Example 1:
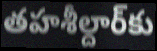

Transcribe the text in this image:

తహశీల్దార్‌కు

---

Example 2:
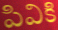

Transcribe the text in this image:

పివికి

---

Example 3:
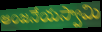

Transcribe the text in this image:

ఆంజనేయస్వామి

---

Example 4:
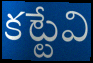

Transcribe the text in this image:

కట్టేవి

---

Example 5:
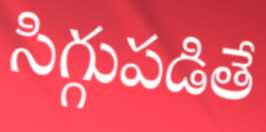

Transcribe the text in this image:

సిగ్గుపడితే